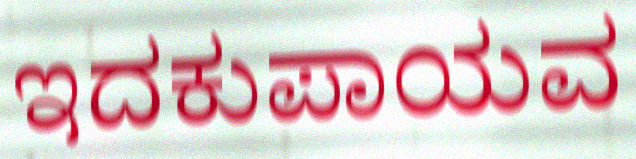
ಇದಕುಪಾಯವ